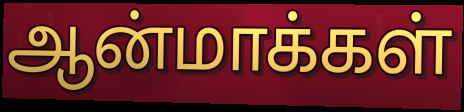
ஆன்மாக்கள்